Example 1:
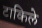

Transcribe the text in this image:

टाकिले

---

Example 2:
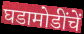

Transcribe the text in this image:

घडामोडींचें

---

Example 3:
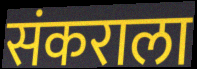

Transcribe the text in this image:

संकराला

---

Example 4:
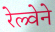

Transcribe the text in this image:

रेल्वेने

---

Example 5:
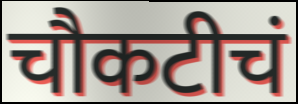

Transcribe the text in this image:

चौकटीचं